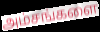
அம்சங்களை